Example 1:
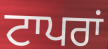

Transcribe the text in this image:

ਟਾਪਰਾਂ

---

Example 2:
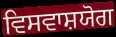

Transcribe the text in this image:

ਵਿਸਵਾਸ਼ਯੋਗ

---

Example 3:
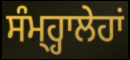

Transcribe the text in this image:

ਸੰਮ੍ਹ੍ਹਾਲੇਹਾਂ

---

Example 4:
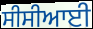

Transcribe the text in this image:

ਸੀਸੀਆਈ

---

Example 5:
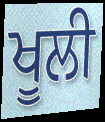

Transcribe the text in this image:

ਖੂਲੀ